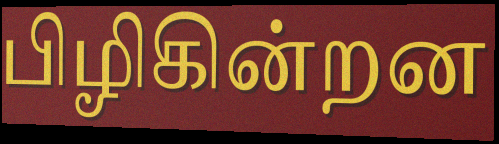
பிழிகின்றன